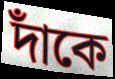
দাঁকে